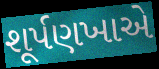
શૂર્પણખાએ